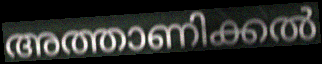
അത്താണിക്കൽ